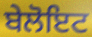
ਬੇਲੋਇਟ